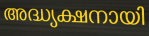
അദ്ധ്യക്ഷനായി